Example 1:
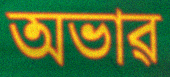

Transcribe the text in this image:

অভাৱ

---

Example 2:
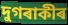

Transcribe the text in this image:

দুগৰাকীৰ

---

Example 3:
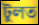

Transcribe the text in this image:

টুলত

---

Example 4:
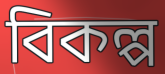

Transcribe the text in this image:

বিকল্প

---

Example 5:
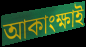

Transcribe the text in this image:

আকাংক্ষাই